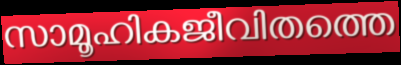
സാമൂഹികജീവിതത്തെ